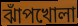
ঝাঁপখোলা